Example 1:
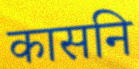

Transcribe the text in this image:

कासनि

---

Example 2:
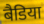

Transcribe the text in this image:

बैडिया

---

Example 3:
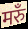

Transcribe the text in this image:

मरुँ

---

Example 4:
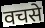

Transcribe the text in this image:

वचसे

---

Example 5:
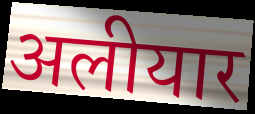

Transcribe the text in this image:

अलीयार